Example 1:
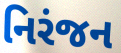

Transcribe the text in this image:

નિરંજન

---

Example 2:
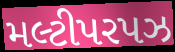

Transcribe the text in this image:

મલ્ટીપરપઝ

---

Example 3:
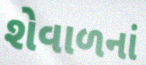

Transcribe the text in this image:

શેવાળનાં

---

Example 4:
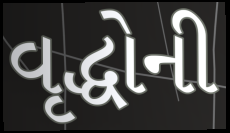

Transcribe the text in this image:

વૃદ્ધોની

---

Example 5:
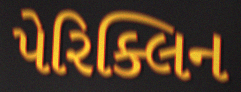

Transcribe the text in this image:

પેરિક્લિન